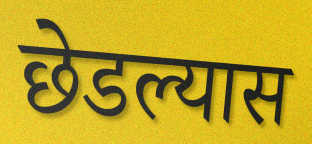
छेडल्यास